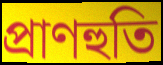
প্ৰাণহুতি